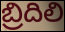
బ్రిదిలి